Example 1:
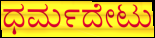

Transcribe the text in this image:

ಧರ್ಮದೇಟು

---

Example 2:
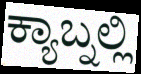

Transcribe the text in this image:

ಕ್ಯಾಬ್ನಲ್ಲಿ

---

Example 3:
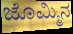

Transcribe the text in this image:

ಜೊಮ್ಮಿನ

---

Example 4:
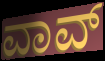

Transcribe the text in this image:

ವಾವ್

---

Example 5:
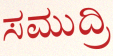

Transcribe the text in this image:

ಸಮುದ್ರಿ